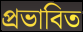
প্ৰভাবিত